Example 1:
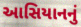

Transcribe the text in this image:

આસિયાનનું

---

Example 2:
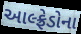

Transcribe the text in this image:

આલ્ફ્રેડોના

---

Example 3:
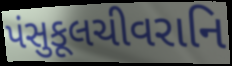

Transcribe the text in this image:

પંસુકૂલચીવરાનિ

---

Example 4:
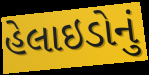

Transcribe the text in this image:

હેલાઇડોનું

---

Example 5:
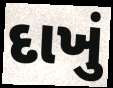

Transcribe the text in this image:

દાખું